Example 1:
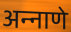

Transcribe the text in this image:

अन्नाणे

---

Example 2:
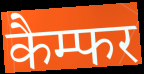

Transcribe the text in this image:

कैम्फर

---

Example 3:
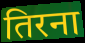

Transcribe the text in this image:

तिरना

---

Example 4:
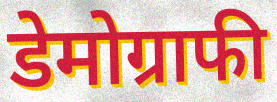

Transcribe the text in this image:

डेमोग्राफी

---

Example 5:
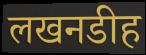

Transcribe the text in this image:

लखनडीह